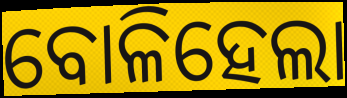
ବୋଳିହେଲା